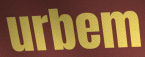
urbem